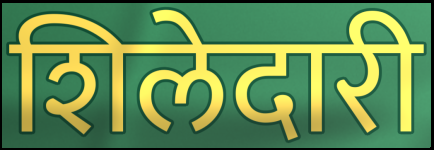
शिलेदारी